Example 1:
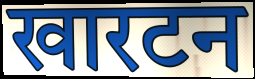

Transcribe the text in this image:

खारटन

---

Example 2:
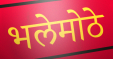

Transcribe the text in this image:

भलेमोठे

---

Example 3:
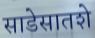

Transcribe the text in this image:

साडेसातशे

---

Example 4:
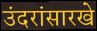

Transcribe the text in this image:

उंदरांसारखे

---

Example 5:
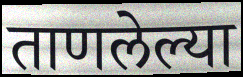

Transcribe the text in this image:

ताणलेल्या